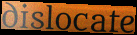
dislocate